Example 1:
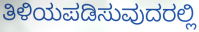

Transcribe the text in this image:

ತಿಳಿಯಪಡಿಸುವುದರಲ್ಲಿ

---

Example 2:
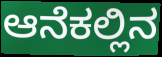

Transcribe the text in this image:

ಆನೆಕಲ್ಲಿನ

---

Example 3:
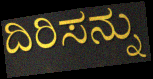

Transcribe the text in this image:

ದಿರಿಸನ್ನು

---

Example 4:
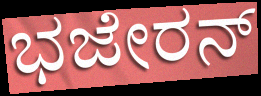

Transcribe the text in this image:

ಭಜೇರನ್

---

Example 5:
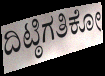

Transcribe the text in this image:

ದಿಟ್ಠಿಗತಿಕೋ